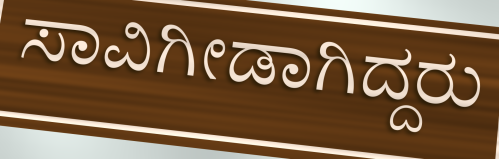
ಸಾವಿಗೀಡಾಗಿದ್ದರು